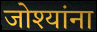
जोश्यांना